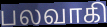
பலவாகி